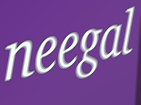
neegal